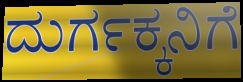
ದುರ್ಗಕ್ಕನಿಗೆ